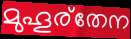
മുഹൂര്തേന